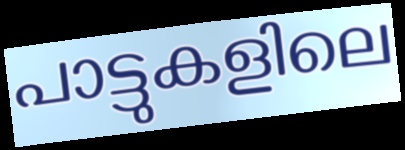
പാട്ടുകളിലെ